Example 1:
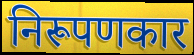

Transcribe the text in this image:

निरूपणकार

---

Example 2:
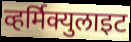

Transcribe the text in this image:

व्हर्मिक्युलाइट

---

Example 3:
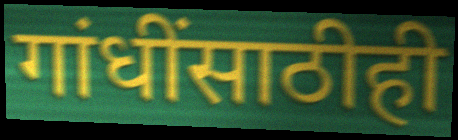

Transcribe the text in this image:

गांधींसाठीही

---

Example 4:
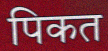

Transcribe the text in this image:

पिकत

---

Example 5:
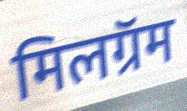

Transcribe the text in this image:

मिलग्रॅम